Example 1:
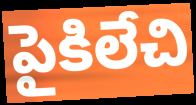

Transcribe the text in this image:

పైకిలేచి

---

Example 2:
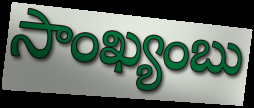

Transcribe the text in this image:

సాంఖ్యంబు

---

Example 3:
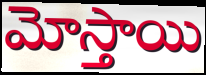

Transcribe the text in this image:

మోస్తాయి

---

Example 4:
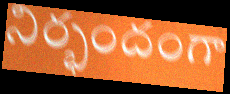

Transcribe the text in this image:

నిర్భందంగా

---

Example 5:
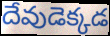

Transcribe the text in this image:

దేవుడెక్కడ